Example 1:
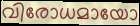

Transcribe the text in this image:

വിരോധമായോ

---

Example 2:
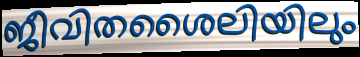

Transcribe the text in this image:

ജീവിതശൈലിയിലും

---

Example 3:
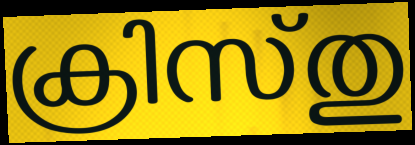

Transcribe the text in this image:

ക്രിസ്‌തു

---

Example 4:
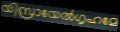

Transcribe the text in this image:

യിസ്രായേൽഗൃഹമേ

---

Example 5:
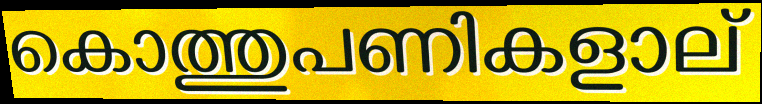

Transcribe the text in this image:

കൊത്തുപണികളാല്